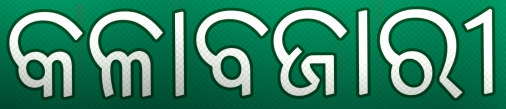
କଳାବଜାରୀ